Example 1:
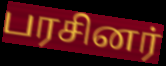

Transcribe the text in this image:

பரசினர்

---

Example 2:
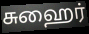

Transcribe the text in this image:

சுஹைர்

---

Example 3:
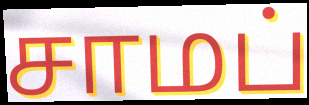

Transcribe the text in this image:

சாமப்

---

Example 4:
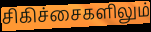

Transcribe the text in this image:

சிகிச்சைகளிலும்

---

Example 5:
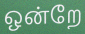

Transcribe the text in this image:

ஒன்றே